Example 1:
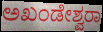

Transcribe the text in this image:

ಅಖಂಡೇಶ್ವರಾ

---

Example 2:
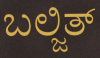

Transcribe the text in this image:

ಬಲ್ಜಿತ್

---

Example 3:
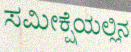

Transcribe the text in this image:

ಸಮೀಕ್ಷೆಯಲ್ಲಿನ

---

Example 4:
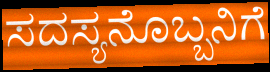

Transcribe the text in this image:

ಸದಸ್ಯನೊಬ್ಬನಿಗೆ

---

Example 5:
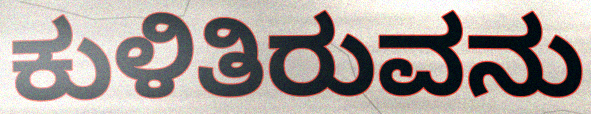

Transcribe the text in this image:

ಕುಳಿತಿರುವನು